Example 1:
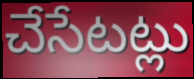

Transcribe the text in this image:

చేసేటట్లు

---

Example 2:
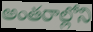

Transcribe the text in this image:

అంతరాల్లోని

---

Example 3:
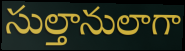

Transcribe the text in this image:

సుల్తానులాగా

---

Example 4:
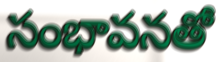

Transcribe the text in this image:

సంభావనతో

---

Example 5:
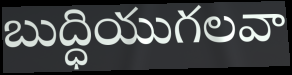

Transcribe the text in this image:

బుద్ధియుగలవా